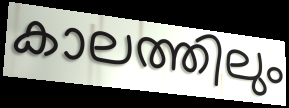
കാലത്തിലും